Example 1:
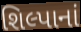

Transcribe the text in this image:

શિલ્પાનાં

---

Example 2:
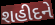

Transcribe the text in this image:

શહીદને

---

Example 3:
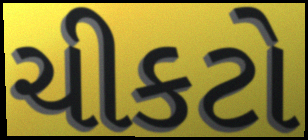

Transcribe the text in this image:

ચીકટો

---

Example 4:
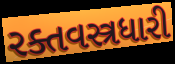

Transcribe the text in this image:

રક્તવસ્ત્રધારી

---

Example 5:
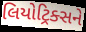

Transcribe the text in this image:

લિયોટ્રિક્સને